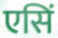
एसिं